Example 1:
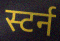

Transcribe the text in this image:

स्टर्न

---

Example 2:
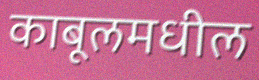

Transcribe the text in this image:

काबूलमधील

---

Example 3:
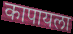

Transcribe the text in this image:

कापायला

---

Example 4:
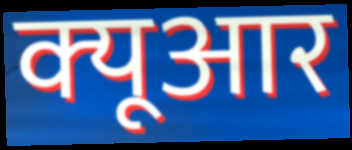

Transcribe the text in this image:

क्यूआर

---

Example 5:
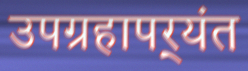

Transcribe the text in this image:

उपग्रहापर्यंत